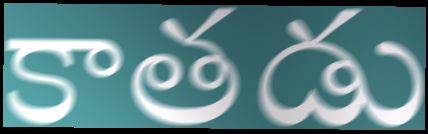
కాతడు